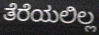
ತೆರೆಯಲಿಲ್ಲ